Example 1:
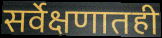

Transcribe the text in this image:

सर्वेक्षणातही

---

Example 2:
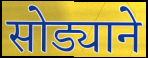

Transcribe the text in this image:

सोड्याने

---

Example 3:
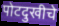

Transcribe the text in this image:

पोटदुखीचे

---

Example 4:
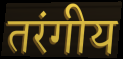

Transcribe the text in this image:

तरंगीय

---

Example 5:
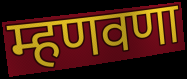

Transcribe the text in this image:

म्हणवणा